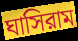
ঘাসিরাম